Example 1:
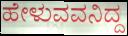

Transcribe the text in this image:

ಹೇಳುವವನಿದ್ದ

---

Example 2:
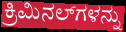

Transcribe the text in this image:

ಕ್ರಿಮಿನಲ್‍ಗಳನ್ನು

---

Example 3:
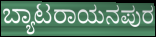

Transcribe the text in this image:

ಬ್ಯಾಟರಾಯನಪುರ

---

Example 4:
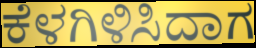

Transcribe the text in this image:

ಕೆಳಗಿಳಿಸಿದಾಗ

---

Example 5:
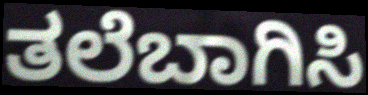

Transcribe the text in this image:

ತಲೆಬಾಗಿಸಿ